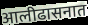
आलीढासनात